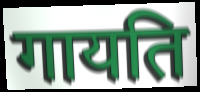
गायति